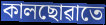
কালছোৱাতে